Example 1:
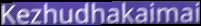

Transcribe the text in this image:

Kezhudhakaimai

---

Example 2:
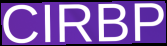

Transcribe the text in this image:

CIRBP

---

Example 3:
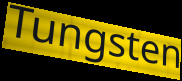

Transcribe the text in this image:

Tungsten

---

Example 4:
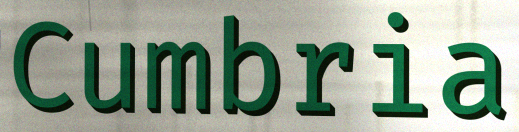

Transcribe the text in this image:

Cumbria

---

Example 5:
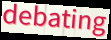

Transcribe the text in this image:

debating